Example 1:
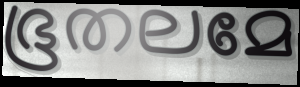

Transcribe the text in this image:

ഭൂതലമേ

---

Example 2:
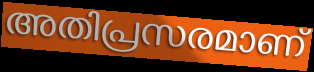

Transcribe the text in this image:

അതിപ്രസരമാണ്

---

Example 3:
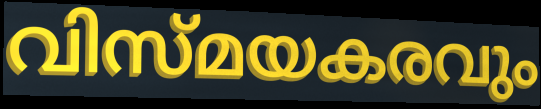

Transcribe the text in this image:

വിസ്മയകരവും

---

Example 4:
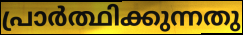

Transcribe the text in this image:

പ്രാർത്ഥിക്കുന്നതു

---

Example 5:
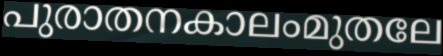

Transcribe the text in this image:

പുരാതനകാലംമുതലേ